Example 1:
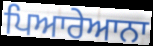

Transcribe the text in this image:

ਪਿਆਰੇਆਨਾ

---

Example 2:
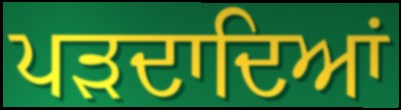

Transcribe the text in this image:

ਪੜਦਾਦਿਆਂ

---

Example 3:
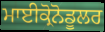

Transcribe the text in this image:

ਮਾਈਕ੍ਰੋਨੋਡੂਲਰ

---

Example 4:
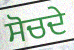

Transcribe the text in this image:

ਸੋਚਦੇ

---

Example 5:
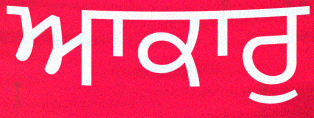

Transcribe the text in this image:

ਆਕਾਰੁ